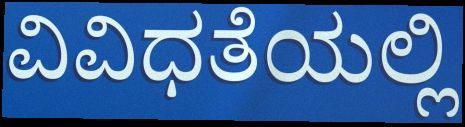
ವಿವಿಧತೆಯಲ್ಲಿ